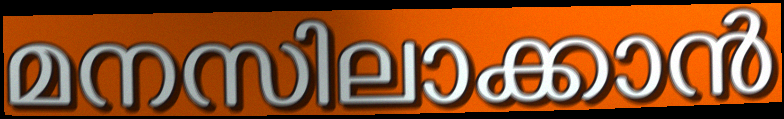
മനസിലാക്കാൻ